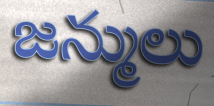
జన్ములు